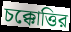
চক্কোত্তির